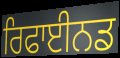
ਰਿਫਾਈਨਡ